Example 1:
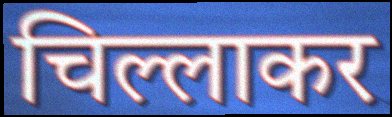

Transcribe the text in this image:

चिल्‍लाकर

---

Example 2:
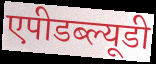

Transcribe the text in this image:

एपीडब्ल्यूडी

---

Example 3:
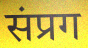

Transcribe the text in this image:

संप्रग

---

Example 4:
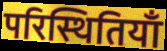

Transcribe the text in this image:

परिस्थितियाँ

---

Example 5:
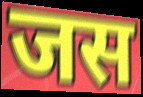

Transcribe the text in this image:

जस